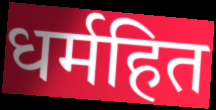
धर्महित